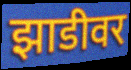
झाडीवर